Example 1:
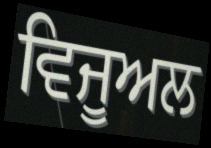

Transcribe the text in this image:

ਵਿਜੂਅਲ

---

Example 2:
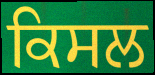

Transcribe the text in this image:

ਕਿਸਲ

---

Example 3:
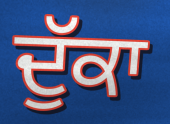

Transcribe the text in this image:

ਦੁੱਕਾ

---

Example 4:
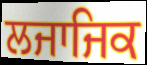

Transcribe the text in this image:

ਲਜਾਜਿਕ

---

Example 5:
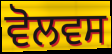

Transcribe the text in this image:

ਵੋਲਵਸ